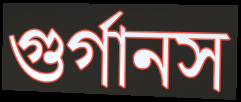
গুর্গানস